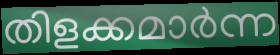
തിളക്കമാർന്ന